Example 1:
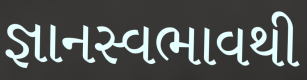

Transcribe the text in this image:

જ્ઞાનસ્વભાવથી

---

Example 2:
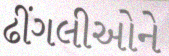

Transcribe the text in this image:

ઢીંગલીઓને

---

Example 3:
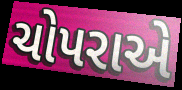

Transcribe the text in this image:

ચોપરાએ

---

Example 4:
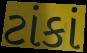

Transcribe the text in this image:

ટાંકાં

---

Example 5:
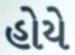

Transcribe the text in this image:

હોયે